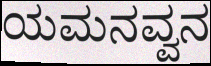
ಯಮನವ್ವನ